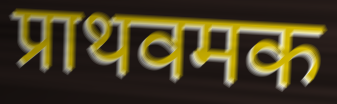
प्राथवमक